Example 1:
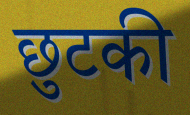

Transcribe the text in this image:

छुटकी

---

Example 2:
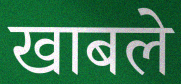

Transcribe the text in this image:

खाबले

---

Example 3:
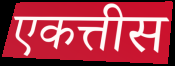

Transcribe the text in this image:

एकत्तीस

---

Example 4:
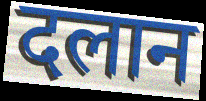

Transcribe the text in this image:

दलान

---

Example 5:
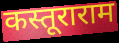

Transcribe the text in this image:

कस्तूराराम